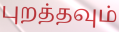
புறத்தவும்